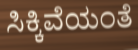
ಸಿಕ್ಕಿವೆಯಂತೆ